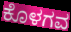
ಕೊಳಗವ